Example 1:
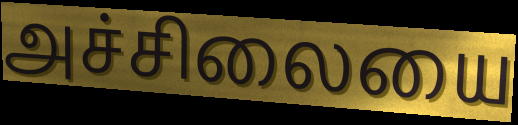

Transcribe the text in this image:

அச்சிலையை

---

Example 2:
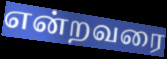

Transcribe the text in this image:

என்றவரை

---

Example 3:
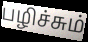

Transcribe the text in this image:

பழிச்சும்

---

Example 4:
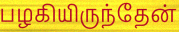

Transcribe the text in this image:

பழகியிருந்தேன்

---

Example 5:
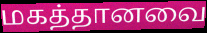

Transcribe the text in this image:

மகத்தானவை